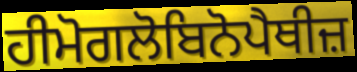
ਹੀਮੋਗਲੋਬਿਨੋਪੈਥੀਜ਼